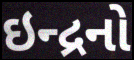
ઇન્દ્રનો